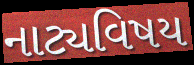
નાટ્યવિષય